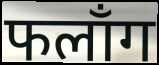
फलाँग